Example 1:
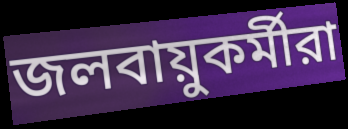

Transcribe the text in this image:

জলবায়ুকর্মীরা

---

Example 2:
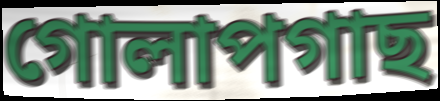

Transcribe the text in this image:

গোলাপগাছ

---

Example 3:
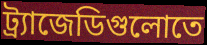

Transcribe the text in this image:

ট্র্যাজেডিগুলোতে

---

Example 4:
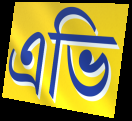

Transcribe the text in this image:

এভি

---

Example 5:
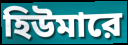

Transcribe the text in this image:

হিউমারে